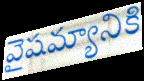
వైషమ్యానికి